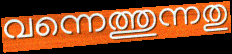
വന്നെത്തുന്നതു